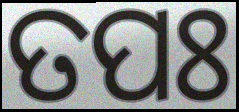
ତପଃ